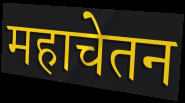
महाचेतन